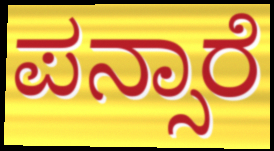
ಪನ್ಸಾರೆ